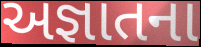
અજ્ઞાતના